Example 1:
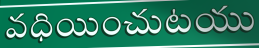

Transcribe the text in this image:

వధియించుటయు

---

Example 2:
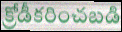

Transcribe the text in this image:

క్రోడీకరించబడి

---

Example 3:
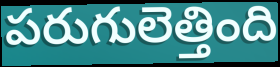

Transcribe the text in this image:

పరుగులెత్తింది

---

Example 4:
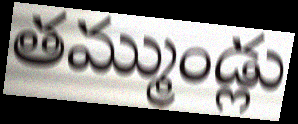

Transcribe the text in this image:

తమ్ముండ్లు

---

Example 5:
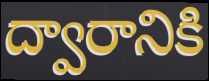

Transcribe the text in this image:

ద్వారానికి